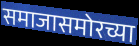
समाजासमोरच्या